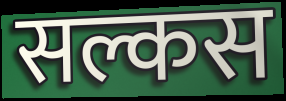
सल्कस